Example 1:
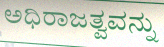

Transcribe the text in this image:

ಅಧಿರಾಜತ್ವವನ್ನು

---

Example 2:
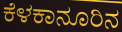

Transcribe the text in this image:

ಕೆಳಕಾನೂರಿನ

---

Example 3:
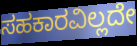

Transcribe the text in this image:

ಸಹಕಾರವಿಲ್ಲದೇ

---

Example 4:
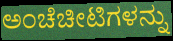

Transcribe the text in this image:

ಅಂಚೆಚೀಟಿಗಳನ್ನು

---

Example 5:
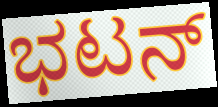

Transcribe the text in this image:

ಭಟನ್